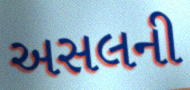
અસલની